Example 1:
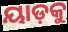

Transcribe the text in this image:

ୟାଡ଼କୁ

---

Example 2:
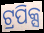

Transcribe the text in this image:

ଟ୍ରପିକ୍ସ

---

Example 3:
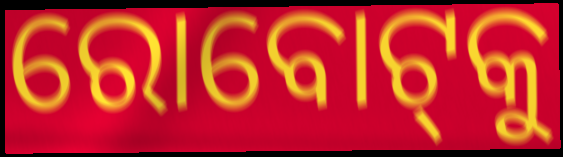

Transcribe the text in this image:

ରୋବୋଟ୍‌କୁ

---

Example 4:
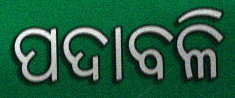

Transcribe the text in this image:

ପଦାବଳି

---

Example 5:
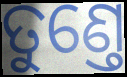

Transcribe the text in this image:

ତୁଣ୍ତେ